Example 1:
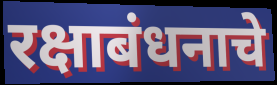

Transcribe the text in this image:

रक्षाबंधनाचे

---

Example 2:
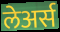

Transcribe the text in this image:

लेअर्स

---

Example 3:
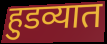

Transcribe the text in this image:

हुडव्यात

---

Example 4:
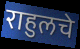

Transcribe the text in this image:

राहुलचे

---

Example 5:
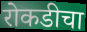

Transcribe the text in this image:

रोकडीचा